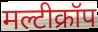
मल्टीक्रॉप